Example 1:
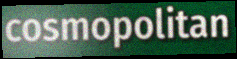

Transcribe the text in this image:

cosmopolitan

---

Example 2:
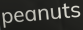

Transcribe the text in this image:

peanuts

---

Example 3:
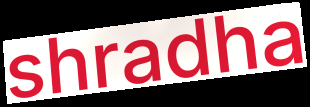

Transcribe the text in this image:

shradha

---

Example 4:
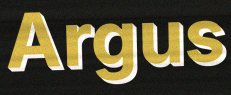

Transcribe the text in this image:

Argus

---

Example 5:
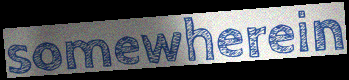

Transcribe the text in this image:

somewherein